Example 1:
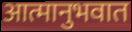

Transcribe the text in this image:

आत्मानुभवात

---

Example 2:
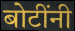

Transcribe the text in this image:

बोटींनी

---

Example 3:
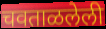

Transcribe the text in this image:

चवताळलेली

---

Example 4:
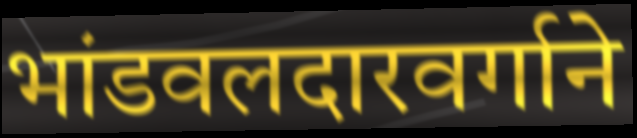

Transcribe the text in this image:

भांडवलदारवर्गाने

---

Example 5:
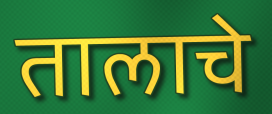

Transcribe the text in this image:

तालाचे